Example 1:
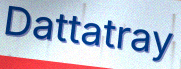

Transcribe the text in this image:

Dattatray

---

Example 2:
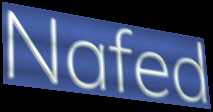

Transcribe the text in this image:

Nafed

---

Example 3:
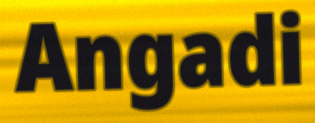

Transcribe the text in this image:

Angadi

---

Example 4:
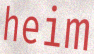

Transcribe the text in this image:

heim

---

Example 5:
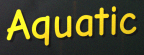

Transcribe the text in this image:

Aquatic